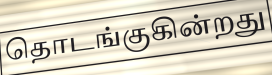
தொடங்குகின்றது